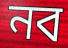
নব